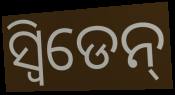
ସ୍ଵିଡେନ୍